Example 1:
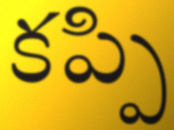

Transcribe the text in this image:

కప్పి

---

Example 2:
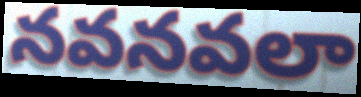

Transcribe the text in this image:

నవనవలా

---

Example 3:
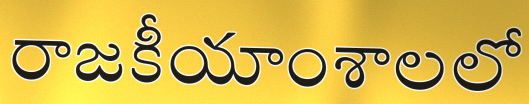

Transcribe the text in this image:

రాజకీయాంశాలలో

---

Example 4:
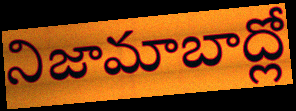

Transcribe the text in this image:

నిజామాబాద్లో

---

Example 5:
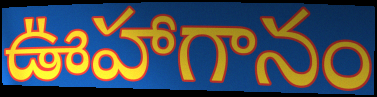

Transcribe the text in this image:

ఊహాగానం